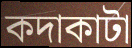
কদাকাটা